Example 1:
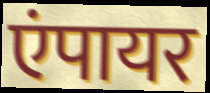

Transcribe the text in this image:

एंपायर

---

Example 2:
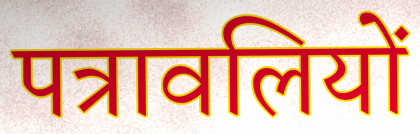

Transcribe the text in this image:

पत्रावलियों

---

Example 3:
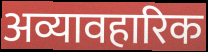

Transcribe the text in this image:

अव्यावहारिक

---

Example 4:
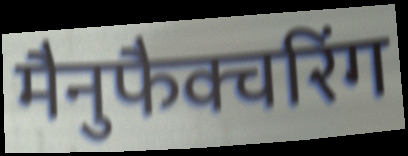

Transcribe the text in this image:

मैनुफैक्चरिंग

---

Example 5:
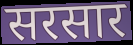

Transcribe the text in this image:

सरसार